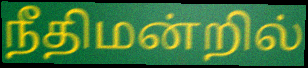
நீதிமன்றில்